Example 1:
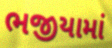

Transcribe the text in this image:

ભજીયામાં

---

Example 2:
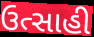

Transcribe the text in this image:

ઉત્સાહી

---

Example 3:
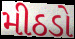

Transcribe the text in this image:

મીઠડો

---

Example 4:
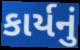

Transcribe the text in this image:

કાર્યનું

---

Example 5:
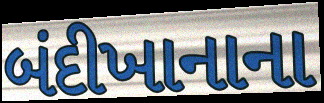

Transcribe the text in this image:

બંદીખાનાના